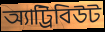
অ্যাট্রিবিউট